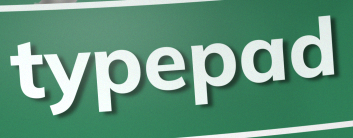
typepad